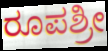
ರೂಪಶ್ರೀ